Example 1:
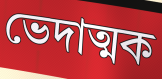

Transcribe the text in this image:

ভেদাত্মক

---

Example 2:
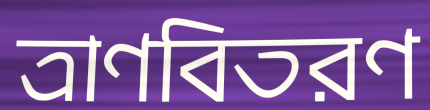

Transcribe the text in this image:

ত্রাণবিতরণ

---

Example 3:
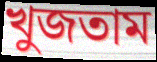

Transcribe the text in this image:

খুজতাম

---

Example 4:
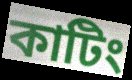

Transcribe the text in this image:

কাটিং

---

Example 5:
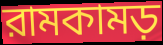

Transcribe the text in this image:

রামকামড়